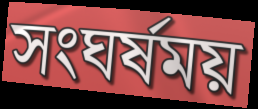
সংঘর্ষময়